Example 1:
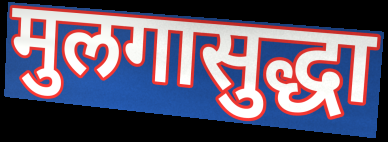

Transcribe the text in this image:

मुलगासुद्धा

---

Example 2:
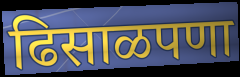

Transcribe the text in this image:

ढिसाळपणा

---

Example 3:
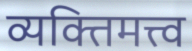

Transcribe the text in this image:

व्यक्तिमत्त्व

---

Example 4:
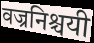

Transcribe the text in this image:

वज्रनिश्चयी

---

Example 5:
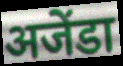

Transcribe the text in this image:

अजेंडा